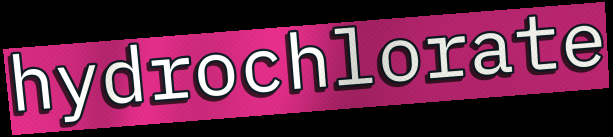
hydrochlorate